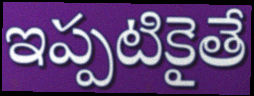
ఇప్పటికైతే